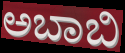
ಅಬಾಬಿ